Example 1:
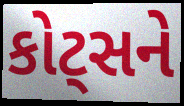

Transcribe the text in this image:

કોટ્સને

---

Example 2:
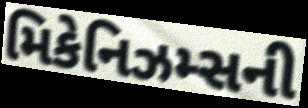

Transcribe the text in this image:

મિકેનિઝમ્સની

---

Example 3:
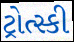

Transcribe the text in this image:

ટ્રોત્સ્કી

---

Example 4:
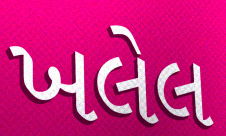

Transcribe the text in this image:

ખલેલ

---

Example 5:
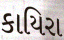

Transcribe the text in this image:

કાયિરા